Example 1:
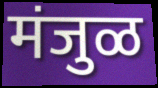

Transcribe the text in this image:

मंजुळ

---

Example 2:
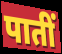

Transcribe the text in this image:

पातीं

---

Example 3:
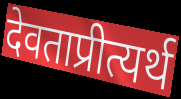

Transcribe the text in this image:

देवताप्रीत्यर्थ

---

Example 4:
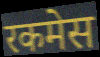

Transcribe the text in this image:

रकमेस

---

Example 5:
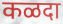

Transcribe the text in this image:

कळदा